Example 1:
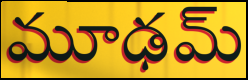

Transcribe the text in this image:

మూఢమ్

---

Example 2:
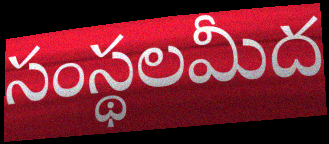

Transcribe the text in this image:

సంస్థలమీద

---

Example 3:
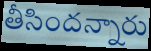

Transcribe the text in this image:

తీసిందన్నారు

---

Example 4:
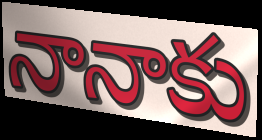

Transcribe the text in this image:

నానాకు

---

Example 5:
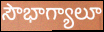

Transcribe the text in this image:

సౌభాగ్యాలూ